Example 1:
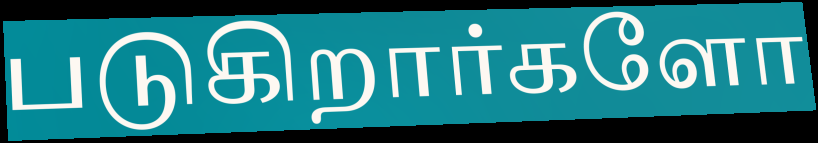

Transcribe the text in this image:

படுகிறார்களோ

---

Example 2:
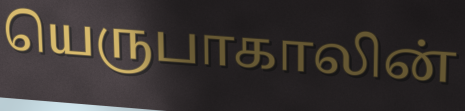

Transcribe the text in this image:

யெருபாகாலின்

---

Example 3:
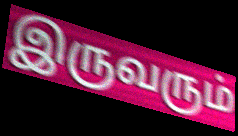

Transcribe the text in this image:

இருவரும்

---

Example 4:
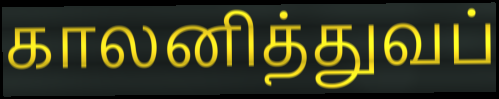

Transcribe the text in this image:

காலனித்துவப்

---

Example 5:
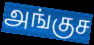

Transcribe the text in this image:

அங்குச